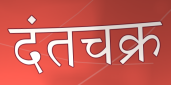
दंतचक्र